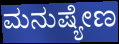
ಮನುಷ್ಯೇಣ